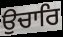
ਉਚਾਰਿ